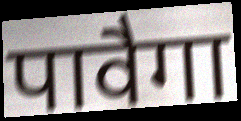
पावैगा